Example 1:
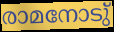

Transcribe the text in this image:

രാമനോടു്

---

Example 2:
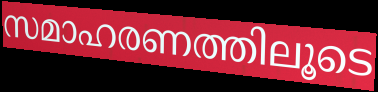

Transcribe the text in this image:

സമാഹരണത്തിലൂടെ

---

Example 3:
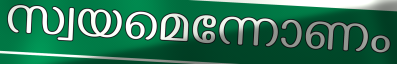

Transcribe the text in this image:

സ്വയമെന്നോണം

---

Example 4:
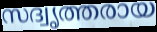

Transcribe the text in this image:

സദ്വൃത്തരായ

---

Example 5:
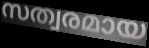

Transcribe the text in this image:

സത്വരമായ